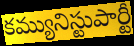
కమ్యునిస్టుపార్టీ